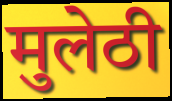
मुलेठी